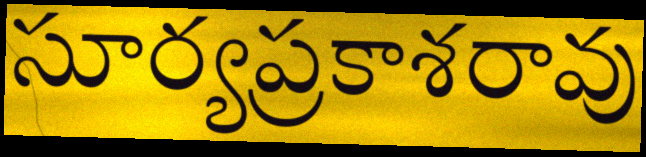
సూర్యప్రకాశరావు